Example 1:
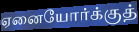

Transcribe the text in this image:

ஏனையோர்க்குத்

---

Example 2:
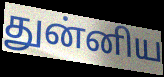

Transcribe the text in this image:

துன்னிய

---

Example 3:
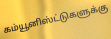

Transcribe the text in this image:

கம்யூனிஸ்ட்டுகளுக்கு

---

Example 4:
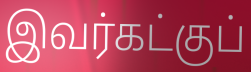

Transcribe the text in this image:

இவர்கட்குப்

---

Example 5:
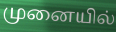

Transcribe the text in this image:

முனையில்